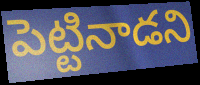
పెట్టినాడని